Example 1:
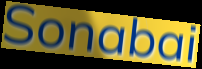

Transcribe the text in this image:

Sonabai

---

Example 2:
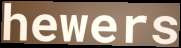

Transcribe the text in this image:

hewers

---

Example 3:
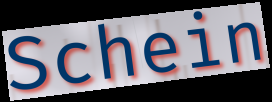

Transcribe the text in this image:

Schein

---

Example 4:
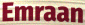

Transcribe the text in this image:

Emraan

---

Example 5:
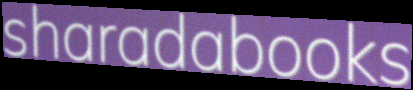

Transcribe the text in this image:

sharadabooks